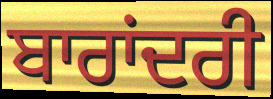
ਬਾਰਾਂਦਰੀ